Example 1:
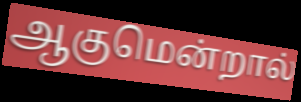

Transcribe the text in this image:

ஆகுமென்றால்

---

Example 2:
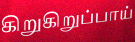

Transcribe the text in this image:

கிறுகிறுப்பாய்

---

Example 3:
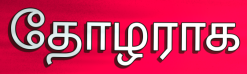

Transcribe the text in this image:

தோழராக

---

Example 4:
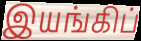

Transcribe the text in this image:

இயங்கிப்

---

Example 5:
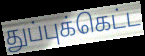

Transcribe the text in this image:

துப்புக்கெட்ட